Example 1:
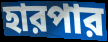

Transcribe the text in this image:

হারপার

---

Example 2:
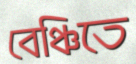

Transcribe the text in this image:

বেঞ্চিতে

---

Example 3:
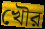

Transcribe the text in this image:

খৌর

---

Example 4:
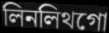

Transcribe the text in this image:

লিনলিথগো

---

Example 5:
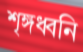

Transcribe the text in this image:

শৃঙ্গধ্বনি